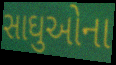
સાઘુઓના